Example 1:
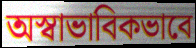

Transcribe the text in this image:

অস্বাভাবিকভাবে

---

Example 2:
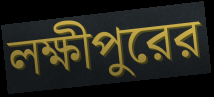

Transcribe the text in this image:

লক্ষীপুরের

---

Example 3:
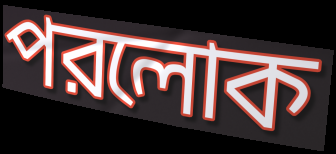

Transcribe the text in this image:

পরলোক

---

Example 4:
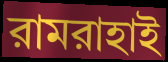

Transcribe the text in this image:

রামরাহাই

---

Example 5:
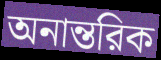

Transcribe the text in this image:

অনান্তরিক